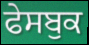
ਫੇਸਬੁਕ